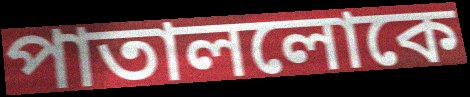
পাতাললোকে